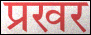
प्रखर